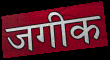
जगीक